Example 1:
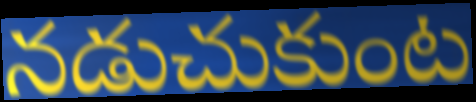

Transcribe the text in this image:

నడుచుకుంట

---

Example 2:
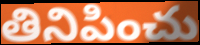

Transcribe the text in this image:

తినిపించు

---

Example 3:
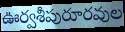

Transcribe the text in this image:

ఊర్వశీపురూరవుల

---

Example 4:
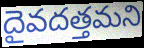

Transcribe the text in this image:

దైవదత్తమని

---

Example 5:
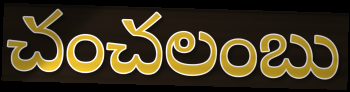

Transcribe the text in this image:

చంచలంబు